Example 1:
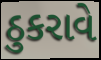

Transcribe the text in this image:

ઠુકરાવે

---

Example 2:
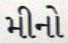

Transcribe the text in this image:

મીનો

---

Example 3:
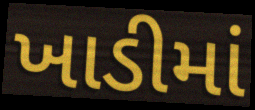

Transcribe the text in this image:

ખાડીમાં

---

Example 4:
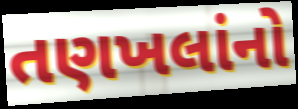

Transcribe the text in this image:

તણખલાંનો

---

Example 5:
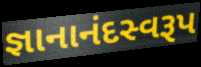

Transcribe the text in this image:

જ્ઞાનાનંદસ્વરૂપ